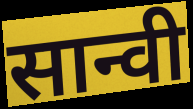
सान्वी